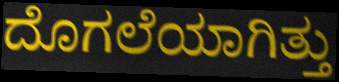
ದೊಗಲೆಯಾಗಿತ್ತು